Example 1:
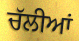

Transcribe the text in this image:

ਚੱਲੀਆਂ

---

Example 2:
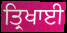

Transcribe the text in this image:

ਤ੍ਰਿਖਾਈ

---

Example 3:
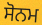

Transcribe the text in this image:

ਸੋਨਮ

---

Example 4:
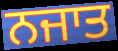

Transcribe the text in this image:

ਨਜਾਤ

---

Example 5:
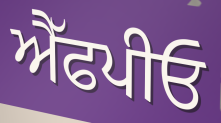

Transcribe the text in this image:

ਐੱਫਪੀਓ